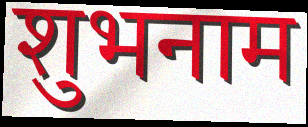
शुभनाम